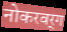
नोकरवर्ग